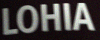
LOHIA